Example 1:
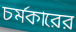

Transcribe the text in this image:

চর্মকারের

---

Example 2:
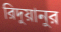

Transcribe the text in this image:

রিদুয়ানুর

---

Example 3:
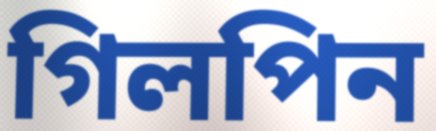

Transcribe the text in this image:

গিলপিন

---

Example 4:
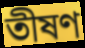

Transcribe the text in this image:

তীষণ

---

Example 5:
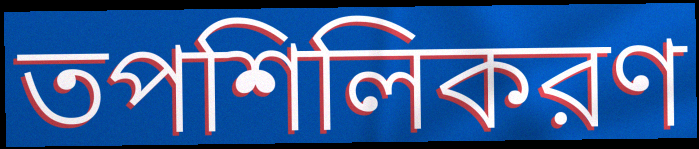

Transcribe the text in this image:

তপশিলিকরণ